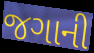
જગાની